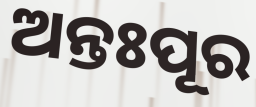
ଅନ୍ତଃପୂର